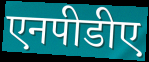
एनपीडीए